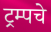
ट्रम्पचे